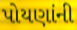
પોયણાંની